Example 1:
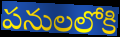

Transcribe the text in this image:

పనులలోకి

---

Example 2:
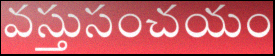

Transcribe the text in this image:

వస్తుసంచయం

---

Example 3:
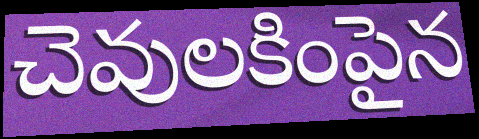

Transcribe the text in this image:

చెవులకింపైన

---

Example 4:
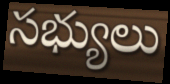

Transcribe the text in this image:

సభ్యులు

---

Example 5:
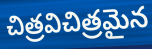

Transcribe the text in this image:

చిత్రవిచిత్రమైన